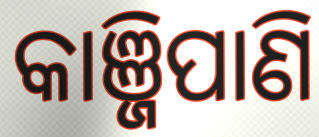
କାଞ୍ଜିପାଣି